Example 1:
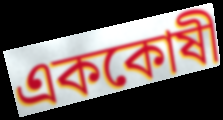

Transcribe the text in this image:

এককোষী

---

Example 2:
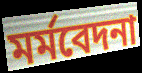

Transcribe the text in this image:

মর্মবেদনা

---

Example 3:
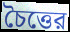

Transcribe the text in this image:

চৈত্তের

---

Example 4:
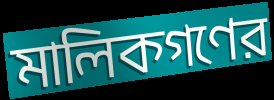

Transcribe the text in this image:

মালিকগণের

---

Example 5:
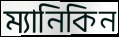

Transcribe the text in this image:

ম্যানিকিন